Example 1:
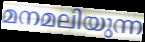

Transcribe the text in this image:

മനമലിയുന്ന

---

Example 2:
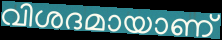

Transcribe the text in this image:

വിശദമായാണ്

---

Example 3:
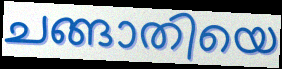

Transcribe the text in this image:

ചങ്ങാതിയെ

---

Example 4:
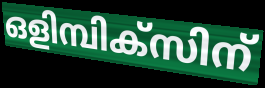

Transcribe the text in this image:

ഒളിമ്പിക്സിന്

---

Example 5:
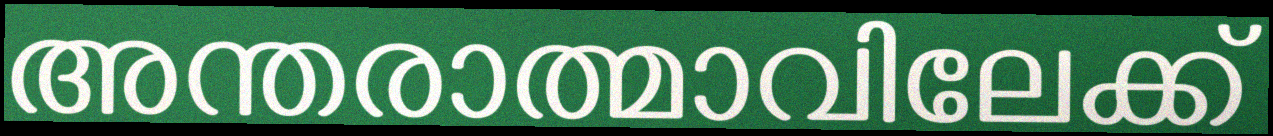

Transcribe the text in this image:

അന്തരാത്മാവിലേക്ക്